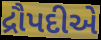
દ્રૌપદીએ